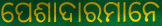
ପେଶାଦାରମାନେ